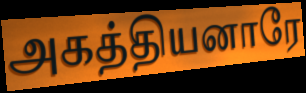
அகத்தியனாரே